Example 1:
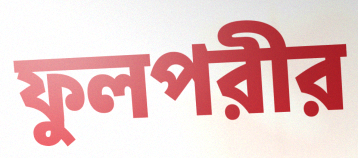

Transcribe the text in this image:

ফুলপরীর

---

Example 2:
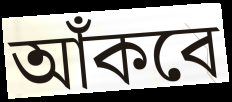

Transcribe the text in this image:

আঁকবে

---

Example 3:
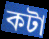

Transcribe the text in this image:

কটা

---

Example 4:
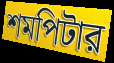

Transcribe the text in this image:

শমপিটার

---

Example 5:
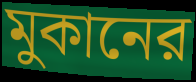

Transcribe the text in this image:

মুকানের